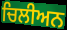
ਚਿਲੀਅਨ